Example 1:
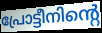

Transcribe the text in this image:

പ്രോട്ടീനിന്റെ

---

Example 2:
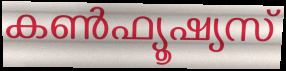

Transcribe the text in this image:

കൺഫ്യൂഷ്യസ്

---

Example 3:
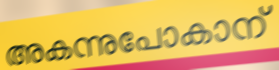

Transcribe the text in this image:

അകന്നുപോകാന്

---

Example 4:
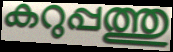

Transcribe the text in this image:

കറുപ്പത്തു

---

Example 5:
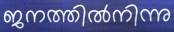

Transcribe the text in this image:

ജനത്തിൽനിന്നു